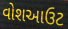
વોશઆઉટ